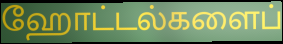
ஹோட்டல்களைப்